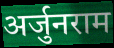
अर्जुनराम